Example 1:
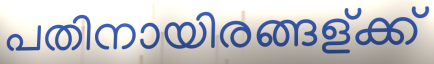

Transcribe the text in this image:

പതിനായിരങ്ങള്ക്ക്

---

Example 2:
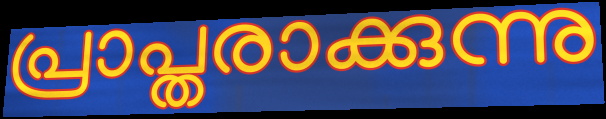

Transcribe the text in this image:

പ്രാപ്തരാക്കുന്നു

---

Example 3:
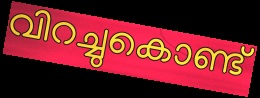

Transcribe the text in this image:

വിറച്ചുകൊണ്ട്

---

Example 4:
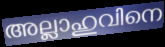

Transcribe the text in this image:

അല്ലാഹുവിനെ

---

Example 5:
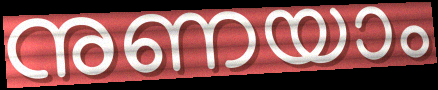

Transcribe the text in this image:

നുണയാം